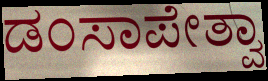
ಡಂಸಾಪೇತ್ವಾ